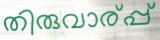
തിരുവാര്പ്പ്